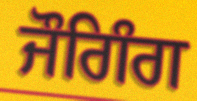
ਜੌਗਿੰਗ